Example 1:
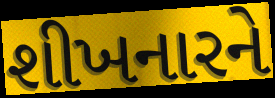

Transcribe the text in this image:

શીખનારને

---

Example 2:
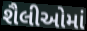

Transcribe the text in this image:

શૈલીઓમાં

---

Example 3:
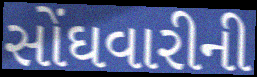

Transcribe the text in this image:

સોંઘવારીની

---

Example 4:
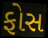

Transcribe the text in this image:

ફોસ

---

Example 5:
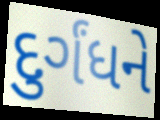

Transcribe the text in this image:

દુર્ગંધને